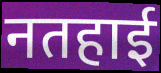
नतहाई